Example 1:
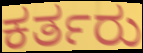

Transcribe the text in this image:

ಕರ್ತರು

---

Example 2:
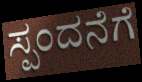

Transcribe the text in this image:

ಸ್ಪಂದನೆಗೆ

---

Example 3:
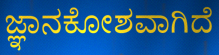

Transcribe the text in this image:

ಜ್ಞಾನಕೋಶವಾಗಿದೆ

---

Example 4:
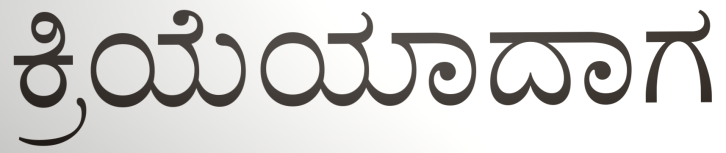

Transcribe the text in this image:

ಕ್ರಿಯೆಯಾದಾಗ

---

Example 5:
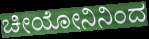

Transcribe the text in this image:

ಚೀಯೋನಿನಿಂದ